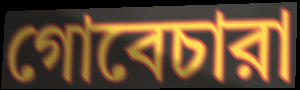
গোবেচারা